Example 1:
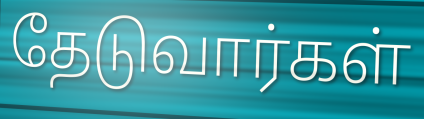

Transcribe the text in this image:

தேடுவார்கள்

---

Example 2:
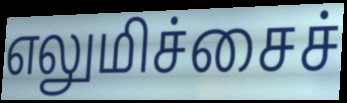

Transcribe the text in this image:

எலுமிச்சைச்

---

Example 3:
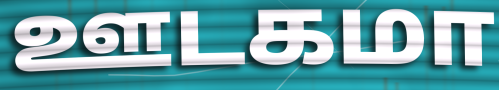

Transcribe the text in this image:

ஊடகமா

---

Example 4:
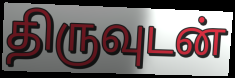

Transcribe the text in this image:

திருவுடன்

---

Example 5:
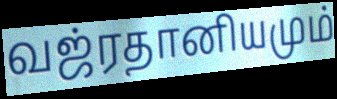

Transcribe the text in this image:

வஜ்ரதானியமும்